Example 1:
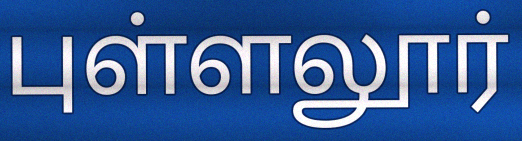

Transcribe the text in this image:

புள்ளலூர்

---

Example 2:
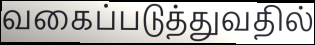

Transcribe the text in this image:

வகைப்படுத்துவதில்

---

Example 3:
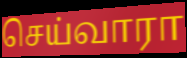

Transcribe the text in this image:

செய்வாரா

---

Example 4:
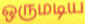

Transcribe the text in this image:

ஒருமடிய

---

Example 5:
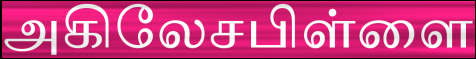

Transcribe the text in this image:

அகிலேசபிள்ளை